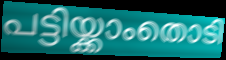
പട്ടിയ്ക്കാംതൊടി